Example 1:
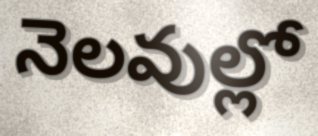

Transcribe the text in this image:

నెలవుల్లో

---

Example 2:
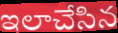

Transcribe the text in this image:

ఇలాచేసిన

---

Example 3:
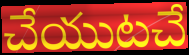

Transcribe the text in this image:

చేయుటచే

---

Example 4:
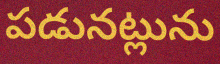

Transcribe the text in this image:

పడునట్లును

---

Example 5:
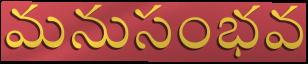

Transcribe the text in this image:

మనుసంభవ